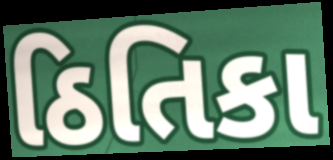
ઠિતિકા